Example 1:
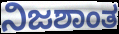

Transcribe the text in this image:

ನಿಜಶಾಂತ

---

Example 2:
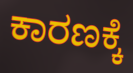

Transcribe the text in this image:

ಕಾರಣಕ್ಕೆ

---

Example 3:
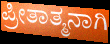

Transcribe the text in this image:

ಪ್ರೀತಾತ್ಮನಾಗಿ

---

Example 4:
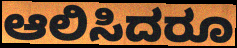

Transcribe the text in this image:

ಆಲಿಸಿದರೂ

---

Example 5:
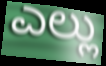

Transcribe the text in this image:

ಎಲ್ಲು